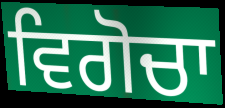
ਵਿਗੋਚਾ